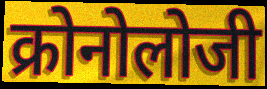
क्रोनोलोजी